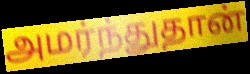
அமர்ந்துதான்